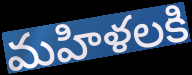
మహిళలకి